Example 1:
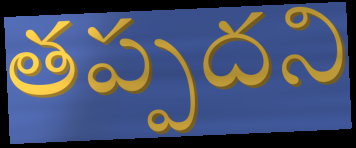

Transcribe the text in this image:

తప్పదని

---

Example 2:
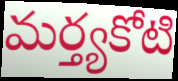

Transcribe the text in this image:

మర్త్యకోటి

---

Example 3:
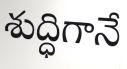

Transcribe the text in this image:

శుద్ధిగానే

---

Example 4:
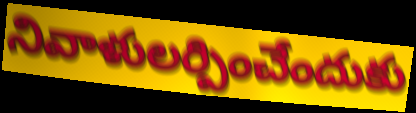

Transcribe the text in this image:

నివాళులర్పించేందుకు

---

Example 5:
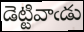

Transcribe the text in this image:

డెట్టివాఁడు